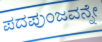
ಪದಪುಂಜವನ್ನೇ